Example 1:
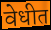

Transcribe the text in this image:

वेधीत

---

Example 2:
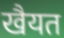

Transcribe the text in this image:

खैयत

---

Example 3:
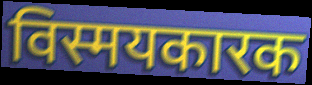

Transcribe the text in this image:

विस्मयकारक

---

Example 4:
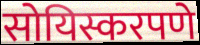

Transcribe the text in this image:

सोयिस्करपणे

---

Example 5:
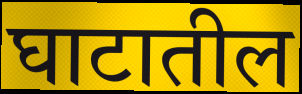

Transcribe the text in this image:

घाटातील